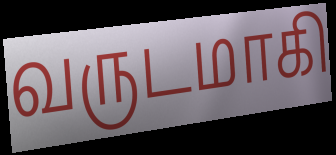
வருடமாகி